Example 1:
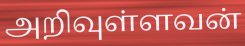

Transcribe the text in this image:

அறிவுள்ளவன்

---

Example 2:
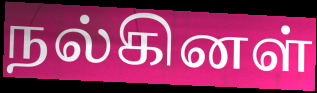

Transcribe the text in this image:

நல்கினள்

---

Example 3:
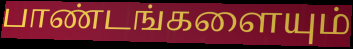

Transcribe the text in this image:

பாண்டங்களையும்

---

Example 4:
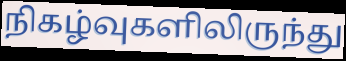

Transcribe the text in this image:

நிகழ்வுகளிலிருந்து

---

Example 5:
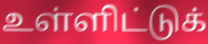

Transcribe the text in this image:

உள்ளிட்டுக்